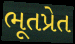
ભૂતપ્રેત